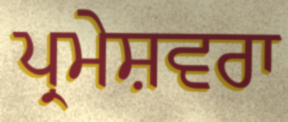
ਪ੍ਰਮੇਸ਼ਵਰਾ